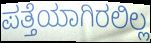
ಪತ್ತೆಯಾಗಿರಲಿಲ್ಲ